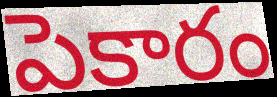
పెకారం